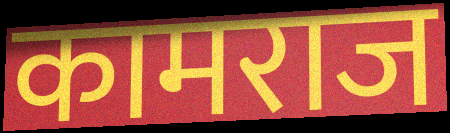
कामराज